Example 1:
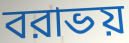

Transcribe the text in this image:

বরাভয়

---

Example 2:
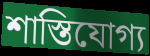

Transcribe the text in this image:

শাস্তিযোগ্য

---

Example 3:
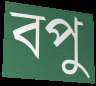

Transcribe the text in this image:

বপু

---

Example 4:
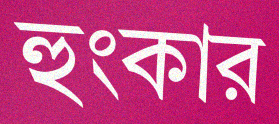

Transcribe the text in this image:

হুংকার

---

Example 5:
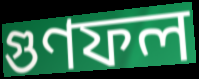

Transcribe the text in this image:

গুণফল